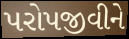
પરોપજીવીને